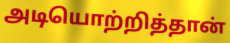
அடியொற்றித்தான்